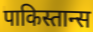
पाकिस्तान्स